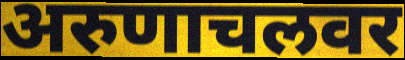
अरुणाचलवर